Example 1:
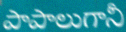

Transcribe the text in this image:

పాపాలుగానీ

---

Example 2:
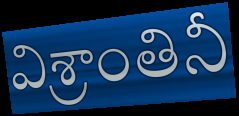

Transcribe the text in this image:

విశ్రాంతినీ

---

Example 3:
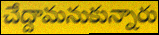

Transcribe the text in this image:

చేద్దామనుకున్నారు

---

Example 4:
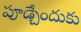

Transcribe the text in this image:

పూడ్చేందుకు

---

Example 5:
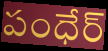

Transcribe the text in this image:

పంధేర్